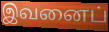
இவனைப்